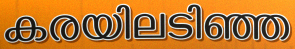
കരയിലടിഞ്ഞ